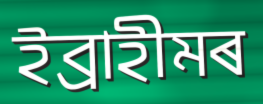
ইব্ৰাহীমৰ